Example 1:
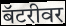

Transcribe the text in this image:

बॅटरीवर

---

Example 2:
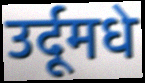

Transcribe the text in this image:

उर्दूमधे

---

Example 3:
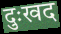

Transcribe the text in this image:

दुःखद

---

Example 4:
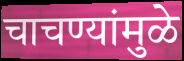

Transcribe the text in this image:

चाचण्यांमुळे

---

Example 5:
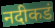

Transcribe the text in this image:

नदीकडं